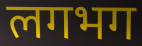
लगभग